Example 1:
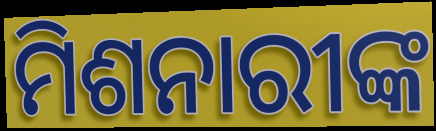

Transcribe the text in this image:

ମିଶନାରୀଙ୍କ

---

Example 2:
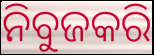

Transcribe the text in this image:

ନିବୁଜକରି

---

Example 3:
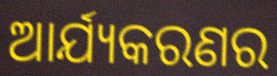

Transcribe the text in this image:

ଆର୍ଯ୍ୟକରଣର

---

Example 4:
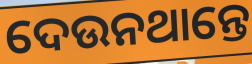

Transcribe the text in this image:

ଦେଉନଥାନ୍ତେ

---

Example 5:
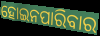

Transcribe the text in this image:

ହୋଇନପାରିବାର